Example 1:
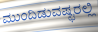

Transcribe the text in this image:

ಮುಂದಿಡುವಷ್ಟರಲ್ಲಿ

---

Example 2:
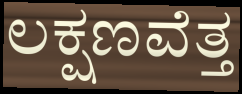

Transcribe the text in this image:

ಲಕ್ಷಣವೆತ್ತ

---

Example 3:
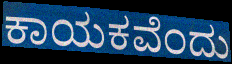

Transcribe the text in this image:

ಕಾಯಕವೆಂದು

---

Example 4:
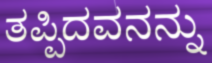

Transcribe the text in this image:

ತಪ್ಪಿದವನನ್ನು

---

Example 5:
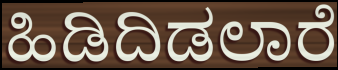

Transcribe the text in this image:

ಹಿಡಿದಿಡಲಾರೆ